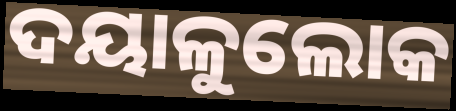
ଦୟାଳୁଲୋକ